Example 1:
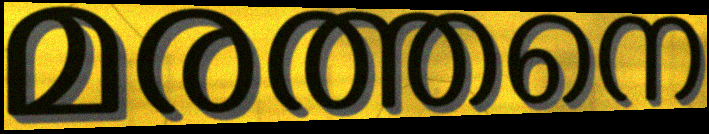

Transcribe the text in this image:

മരത്തനെ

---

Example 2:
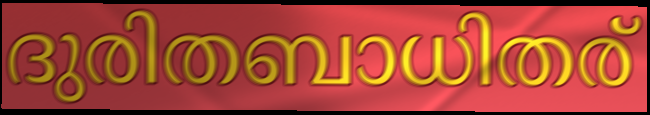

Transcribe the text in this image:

ദുരിതബാധിതര്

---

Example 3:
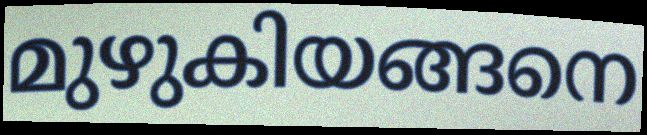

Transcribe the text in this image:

മുഴുകിയങ്ങനെ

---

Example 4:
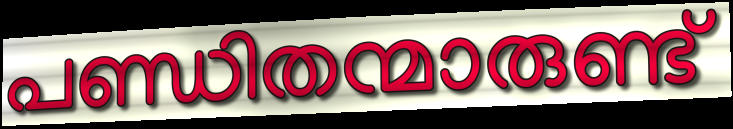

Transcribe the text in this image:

പണ്ഡിതന്മാരുണ്ട്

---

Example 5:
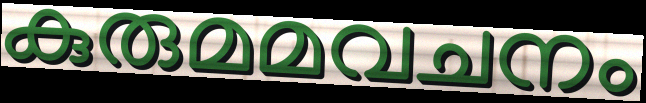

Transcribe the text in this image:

കുരുമമവചനം